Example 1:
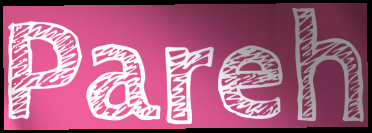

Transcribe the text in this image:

Pareh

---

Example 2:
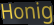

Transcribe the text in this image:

Honig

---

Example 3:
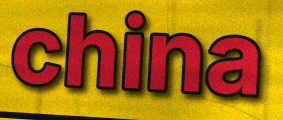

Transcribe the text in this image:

china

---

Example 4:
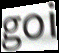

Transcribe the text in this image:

goi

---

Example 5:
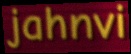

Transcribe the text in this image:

jahnvi